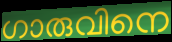
ഗാരുവിനെ